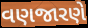
વણજારણે